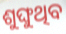
ଶୁଙ୍ଘୁଥିବ